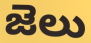
జెలు